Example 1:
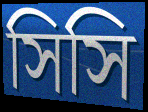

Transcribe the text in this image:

সিসি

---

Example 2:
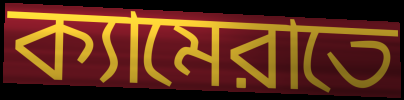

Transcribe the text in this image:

ক্যামেরাতে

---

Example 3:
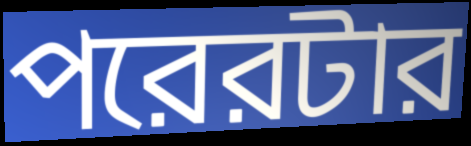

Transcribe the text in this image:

পরেরটার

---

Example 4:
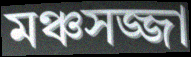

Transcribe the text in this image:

মঞ্চসজ্জা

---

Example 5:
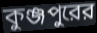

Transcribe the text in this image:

কুঞ্জপুরের